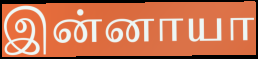
இன்னாயா